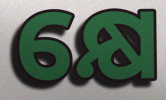
କ୍ଷେ